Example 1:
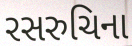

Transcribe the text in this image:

રસરુચિના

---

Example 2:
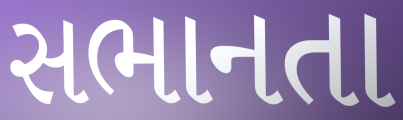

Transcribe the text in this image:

સભાનતા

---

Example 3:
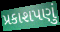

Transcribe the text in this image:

પ્રકાશપણું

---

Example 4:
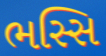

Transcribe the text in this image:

ભસ્સિ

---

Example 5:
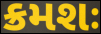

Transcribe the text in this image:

ક્રમશઃ